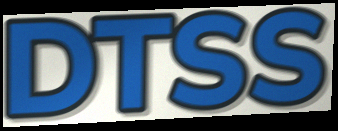
DTSS